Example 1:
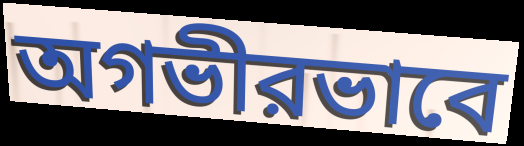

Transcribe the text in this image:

অগভীরভাবে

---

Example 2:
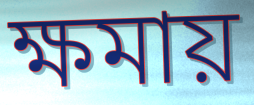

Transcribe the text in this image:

ক্ষমায়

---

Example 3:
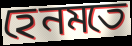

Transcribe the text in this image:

হেনমতে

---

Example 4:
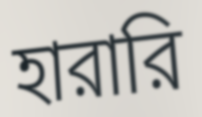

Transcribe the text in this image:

হারারি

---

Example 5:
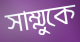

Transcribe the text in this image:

সাম্মুকে